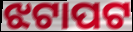
ଝଟାପଟ